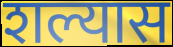
शल्यास